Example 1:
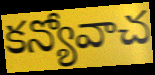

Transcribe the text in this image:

కన్యోవాచ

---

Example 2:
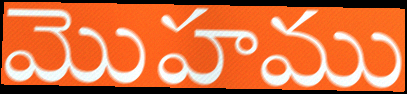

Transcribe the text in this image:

మొహము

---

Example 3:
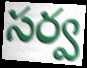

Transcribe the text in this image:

సర్వ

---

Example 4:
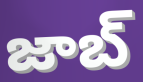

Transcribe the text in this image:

జాబ్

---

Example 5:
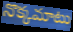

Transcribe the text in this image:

నొక్కమాటు